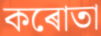
কৰোতা